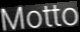
Motto